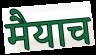
मैयाच